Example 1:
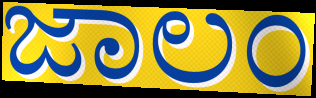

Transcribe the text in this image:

ಜಾಲಂ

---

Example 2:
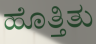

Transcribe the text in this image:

ಹೊತ್ತಿತು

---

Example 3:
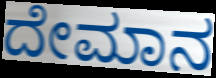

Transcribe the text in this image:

ದೇಮಾನ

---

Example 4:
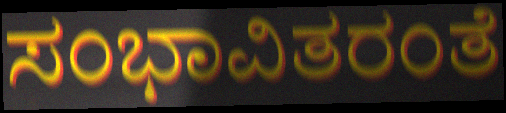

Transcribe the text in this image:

ಸಂಭಾವಿತರಂತೆ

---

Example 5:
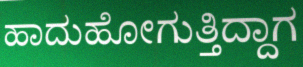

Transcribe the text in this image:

ಹಾದುಹೋಗುತ್ತಿದ್ದಾಗ